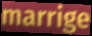
marrige